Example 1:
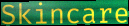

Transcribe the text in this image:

Skincare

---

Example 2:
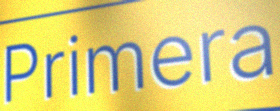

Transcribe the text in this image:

Primera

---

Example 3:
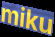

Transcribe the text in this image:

miku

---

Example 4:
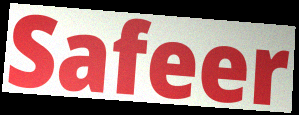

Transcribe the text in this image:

Safeer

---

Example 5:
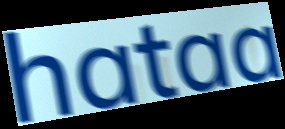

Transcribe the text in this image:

hataa